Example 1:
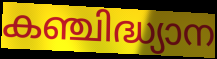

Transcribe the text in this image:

കഞ്ചിദ്ധ്യാന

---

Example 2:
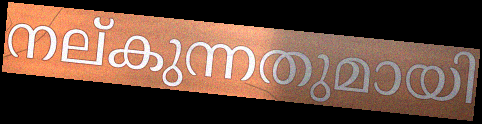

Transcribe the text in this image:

നല്കുന്നതുമായി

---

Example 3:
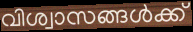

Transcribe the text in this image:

വിശ്വാസങ്ങൾക്ക്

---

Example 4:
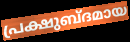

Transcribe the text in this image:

പ്രക്ഷുബ്ദമായ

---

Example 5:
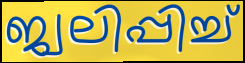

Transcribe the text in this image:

ജ്വലിപ്പിച്ച്